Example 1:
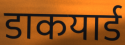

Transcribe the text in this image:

डाकयार्ड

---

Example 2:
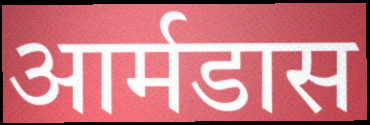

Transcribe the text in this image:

आर्मडास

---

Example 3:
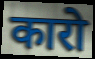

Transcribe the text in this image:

कारो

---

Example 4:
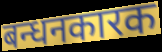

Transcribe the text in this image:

बन्धनकारक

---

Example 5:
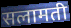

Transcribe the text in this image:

सलामती